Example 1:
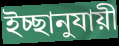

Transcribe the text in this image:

ইচ্ছানুযায়ী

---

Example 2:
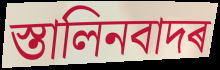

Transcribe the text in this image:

স্তালিনবাদৰ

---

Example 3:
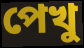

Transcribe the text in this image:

পেখু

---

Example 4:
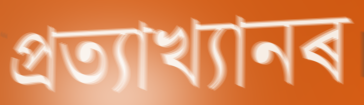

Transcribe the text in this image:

প্ৰত্যাখ্যানৰ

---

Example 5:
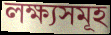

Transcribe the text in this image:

লক্ষ্যসমূহ